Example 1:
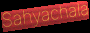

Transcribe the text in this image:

Sahyachala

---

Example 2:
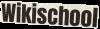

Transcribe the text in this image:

Wikischool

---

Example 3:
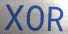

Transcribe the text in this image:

XOR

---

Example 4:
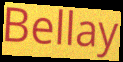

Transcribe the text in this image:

Bellay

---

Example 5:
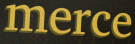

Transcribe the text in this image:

merce